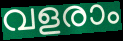
വളരാം